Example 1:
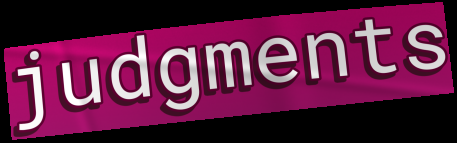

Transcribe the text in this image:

judgments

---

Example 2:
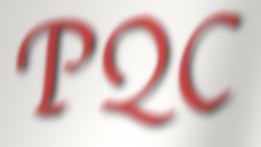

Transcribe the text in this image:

PQC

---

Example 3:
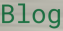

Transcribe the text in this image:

Blog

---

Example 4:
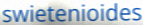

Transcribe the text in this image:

swietenioides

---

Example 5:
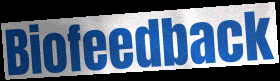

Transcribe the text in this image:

Biofeedback